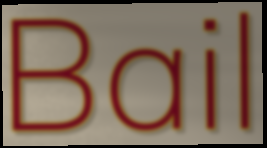
Bail